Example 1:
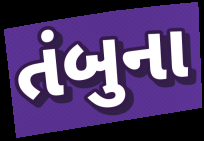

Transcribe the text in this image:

તંબુના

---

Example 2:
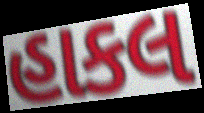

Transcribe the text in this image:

હાકલ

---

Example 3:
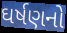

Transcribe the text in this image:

ઘર્ષણનો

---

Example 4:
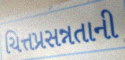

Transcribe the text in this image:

ચિત્તપ્રસન્નતાની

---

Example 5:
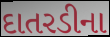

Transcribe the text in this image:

દાતરડીના